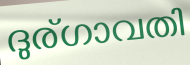
ദുര്ഗാവതി